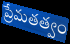
ప్రేమతత్వం